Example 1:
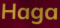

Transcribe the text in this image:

Haga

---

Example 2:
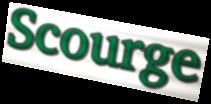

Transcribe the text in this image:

Scourge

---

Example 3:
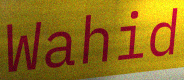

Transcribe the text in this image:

Wahid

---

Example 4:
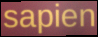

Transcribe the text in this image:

sapien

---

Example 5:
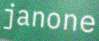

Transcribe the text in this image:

janone